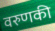
वरुणकी